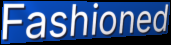
Fashioned